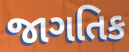
જાગતિક